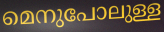
മെനുപോലുള്ള